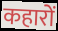
कहारों